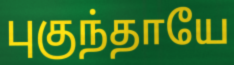
புகுந்தாயே